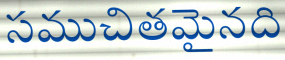
సముచితమైనది